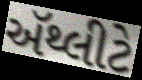
ઍથ્લીટે